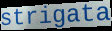
strigata